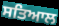
ਸਤਿਆਲ